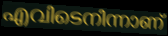
എവിടെനിന്നാണ്